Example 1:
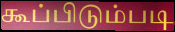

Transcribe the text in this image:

கூப்பிடும்படி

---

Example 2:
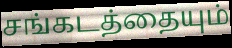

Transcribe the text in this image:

சங்கடத்தையும்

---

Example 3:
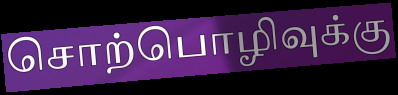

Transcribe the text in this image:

சொற்பொழிவுக்கு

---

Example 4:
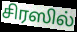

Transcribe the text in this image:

சிரஸில்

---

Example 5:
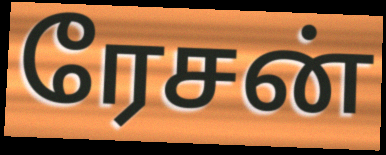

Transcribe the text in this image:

ரேசன்